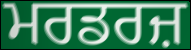
ਮਰਡਰਜ਼